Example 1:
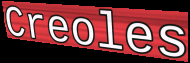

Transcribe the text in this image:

Creoles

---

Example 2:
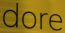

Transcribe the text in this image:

dore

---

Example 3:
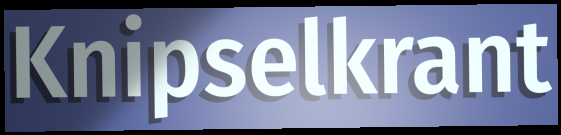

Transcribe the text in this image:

Knipselkrant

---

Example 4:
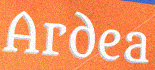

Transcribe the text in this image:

Ardea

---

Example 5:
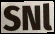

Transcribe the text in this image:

SNl